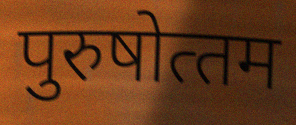
पुरुषोत्‍तम